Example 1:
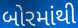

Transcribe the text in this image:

બોરમાંથી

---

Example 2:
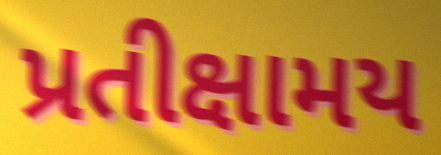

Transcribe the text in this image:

પ્રતીક્ષામય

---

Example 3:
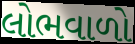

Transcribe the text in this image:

લોભવાળો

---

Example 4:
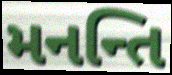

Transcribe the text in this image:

મનન્તિ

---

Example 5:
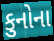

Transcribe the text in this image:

કુનોના